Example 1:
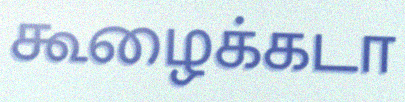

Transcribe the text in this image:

கூழைக்கடா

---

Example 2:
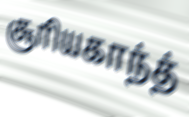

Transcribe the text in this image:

சூரியகாந்த்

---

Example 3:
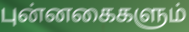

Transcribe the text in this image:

புன்னகைகளும்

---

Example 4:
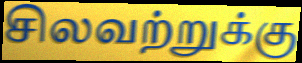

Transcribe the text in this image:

சிலவற்றுக்கு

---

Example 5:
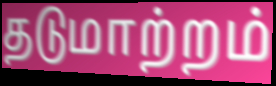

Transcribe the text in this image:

தடுமாற்றம்